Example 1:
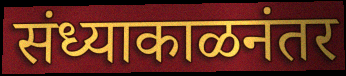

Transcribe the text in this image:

संध्याकाळनंतर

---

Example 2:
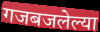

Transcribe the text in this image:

गजबजलेल्या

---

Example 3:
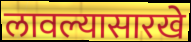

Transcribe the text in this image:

लावल्यासारखे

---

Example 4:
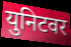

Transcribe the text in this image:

युनिटवर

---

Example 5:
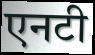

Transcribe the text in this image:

एनटी